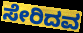
ಸೇರಿದವ